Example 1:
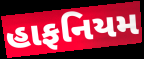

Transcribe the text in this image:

હાફનિયમ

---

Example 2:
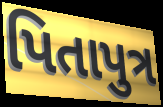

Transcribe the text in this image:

પિતાપુત્ર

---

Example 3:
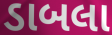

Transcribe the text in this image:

ડાબલા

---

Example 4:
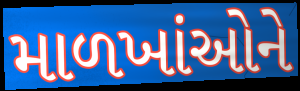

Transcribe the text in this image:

માળખાંઓને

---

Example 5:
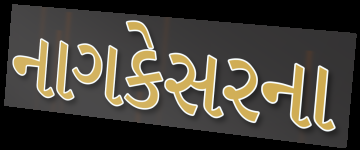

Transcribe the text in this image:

નાગકેસરના